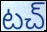
టచ్